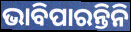
ଭାବିପାରନ୍ତିନି